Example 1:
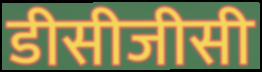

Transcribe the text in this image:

डीसीजीसी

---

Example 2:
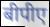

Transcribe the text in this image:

बीपीए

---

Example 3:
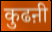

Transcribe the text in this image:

कुढऩी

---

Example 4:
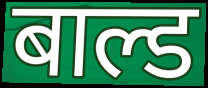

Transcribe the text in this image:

बाल्ड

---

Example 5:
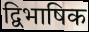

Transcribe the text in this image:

द्विभाषिक